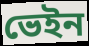
ভেইন